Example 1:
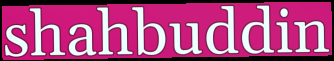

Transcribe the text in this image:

shahbuddin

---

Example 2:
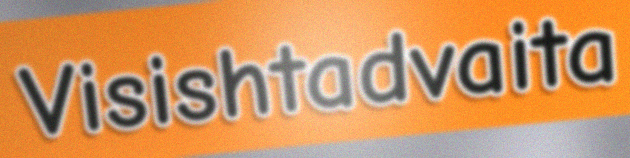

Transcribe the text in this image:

Visishtadvaita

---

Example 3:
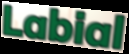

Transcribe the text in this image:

Labial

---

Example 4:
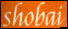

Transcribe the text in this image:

shobai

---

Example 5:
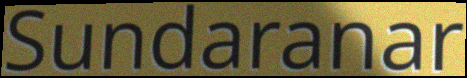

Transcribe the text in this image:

Sundaranar